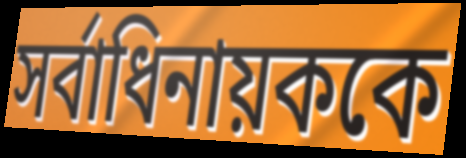
সর্বাধিনায়ককে